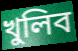
খুলিব